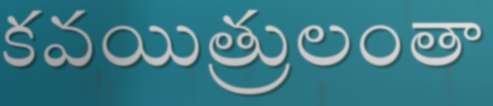
కవయిత్రులంతా